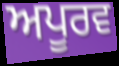
ਅਪੂਰਵ